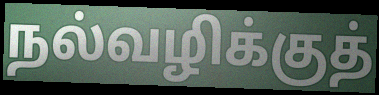
நல்வழிக்குத்